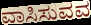
ವಾಸಿಸುವವ